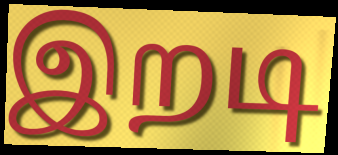
இறடி